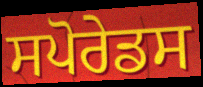
ਸਪੋਰੇਡਸ